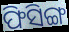
ଫିସିଙ୍ଗ